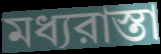
মধ্যরাস্তা